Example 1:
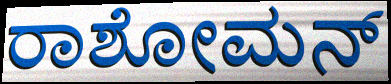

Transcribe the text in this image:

ರಾಶೋಮನ್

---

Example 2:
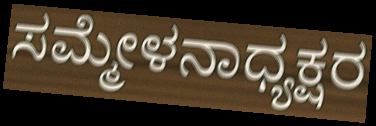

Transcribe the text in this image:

ಸಮ್ಮೇಳನಾಧ್ಯಕ್ಷರ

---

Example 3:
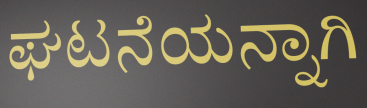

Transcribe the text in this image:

ಘಟನೆಯನ್ನಾಗಿ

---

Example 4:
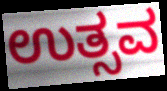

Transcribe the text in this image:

ಉತ್ಸವ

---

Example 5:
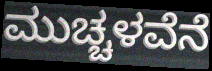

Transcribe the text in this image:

ಮುಚ್ಚಳವೆನೆ